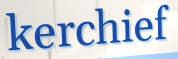
kerchief